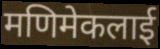
मणिमेकलाई